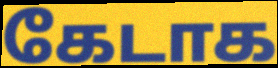
கேடாக